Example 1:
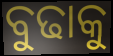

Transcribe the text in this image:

ବୁଢାକୁ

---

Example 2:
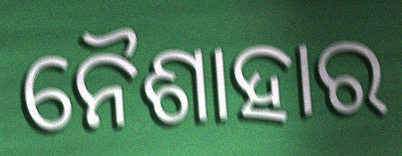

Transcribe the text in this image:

ନୈଶାହାର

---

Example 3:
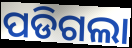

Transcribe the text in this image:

ପଡିଗଲା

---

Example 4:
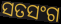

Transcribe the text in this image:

ସତସଂଗ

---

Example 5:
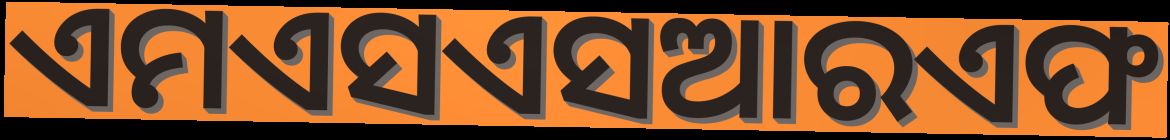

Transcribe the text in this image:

ଏମଏସଏସଆରଏଫ